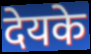
देयके